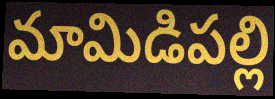
మామిడిపల్లి